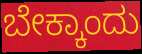
ಬೇಕ್ಕಾಂದು